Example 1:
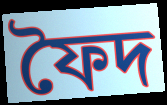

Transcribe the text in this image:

ফৈদ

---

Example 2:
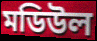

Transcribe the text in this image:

মডিউল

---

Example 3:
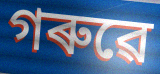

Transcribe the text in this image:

গৰুৱে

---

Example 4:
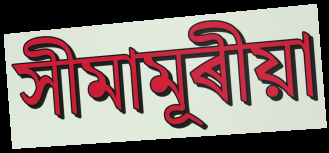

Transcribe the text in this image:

সীমামূৰীয়া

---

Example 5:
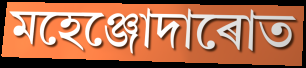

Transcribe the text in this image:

মহেঞ্জোদাৰোত